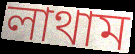
লাথাম